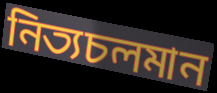
নিত্যচলমান